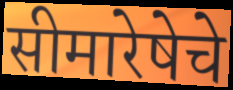
सीमारेषेचे